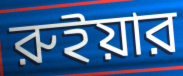
রুইয়ার